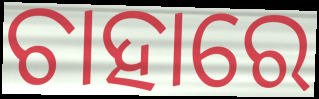
ଚାହାରେ